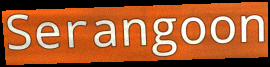
Serangoon